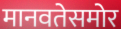
मानवतेसमोर